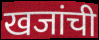
खजांची